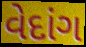
વેદાંગ